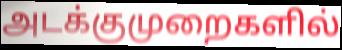
அடக்குமுறைகளில்